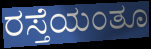
ರಸ್ತೆಯಂತೂ